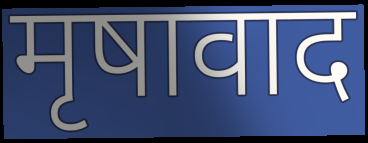
मृषावाद